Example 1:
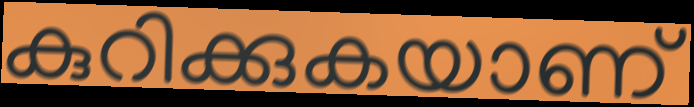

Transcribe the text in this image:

കുറിക്കുകയാണ്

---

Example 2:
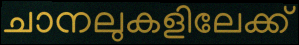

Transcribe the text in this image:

ചാനലുകളിലേക്ക്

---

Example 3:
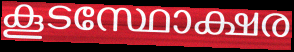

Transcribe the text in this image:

കൂടസ്ഥോക്ഷര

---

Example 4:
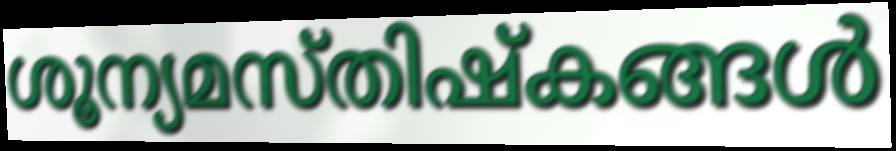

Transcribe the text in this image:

ശൂന്യമസ്തിഷ്കങ്ങൾ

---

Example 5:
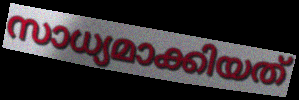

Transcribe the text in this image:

സാധ്യമാക്കിയത്